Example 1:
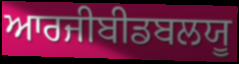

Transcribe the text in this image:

ਆਰਜੀਬੀਡਬਲਯੂ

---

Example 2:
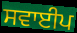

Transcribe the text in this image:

ਸਵਾਈਪ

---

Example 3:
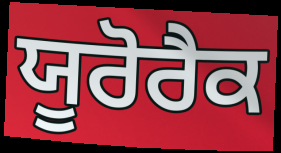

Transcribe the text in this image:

ਯੂਰੋਰੈਕ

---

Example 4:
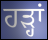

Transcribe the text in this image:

ਹੜ੍ਹਾਂ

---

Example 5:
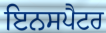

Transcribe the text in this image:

ਇਨਸਪੈਟਰ